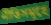
নীতিসমূহে